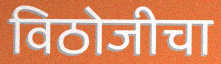
विठोजीचा